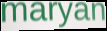
maryan